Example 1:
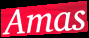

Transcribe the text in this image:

Amas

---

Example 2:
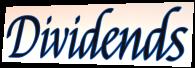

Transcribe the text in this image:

Dividends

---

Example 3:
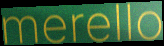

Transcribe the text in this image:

merello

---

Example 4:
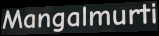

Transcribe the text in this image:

Mangalmurti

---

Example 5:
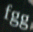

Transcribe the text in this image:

fgg